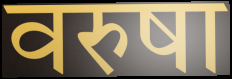
वरुषा